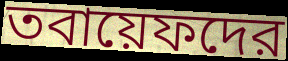
তবায়েফদের